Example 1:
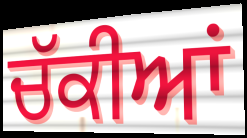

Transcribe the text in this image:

ਚੱਕੀਆਂ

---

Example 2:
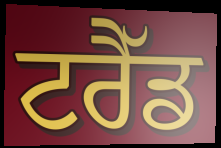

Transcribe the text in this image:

ਟਰੈੱਡ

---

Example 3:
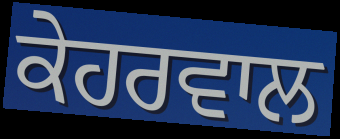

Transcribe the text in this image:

ਕੇਹਰਵਾਲ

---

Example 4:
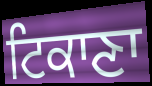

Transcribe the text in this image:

ਟਿਕਾਣਾ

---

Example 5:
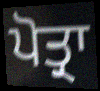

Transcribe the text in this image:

ਪੋਤ੍ਰਾ